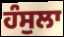
ਹੰਸੁਲਾ